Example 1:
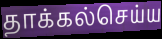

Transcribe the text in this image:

தாக்கல்செய்ய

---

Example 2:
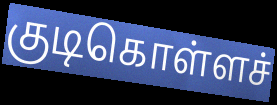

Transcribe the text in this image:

குடிகொள்ளச்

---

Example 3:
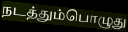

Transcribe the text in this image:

நடத்தும்பொழுது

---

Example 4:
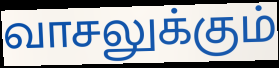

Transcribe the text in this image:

வாசலுக்கும்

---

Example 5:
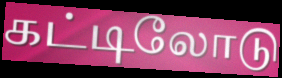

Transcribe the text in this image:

கட்டிலோடு